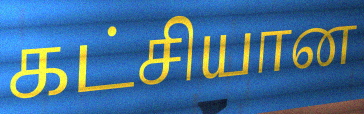
கட்சியான